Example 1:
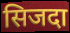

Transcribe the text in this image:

सिजदा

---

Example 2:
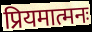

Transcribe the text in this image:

प्रियमात्मनः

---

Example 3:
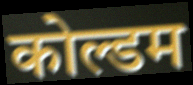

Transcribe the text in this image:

कोल्डम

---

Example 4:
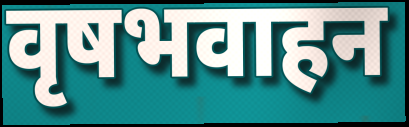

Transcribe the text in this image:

वृषभवाहन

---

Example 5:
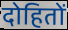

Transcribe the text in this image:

दोहितों